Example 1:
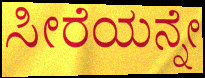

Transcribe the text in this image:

ಸೀರೆಯನ್ನೇ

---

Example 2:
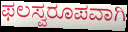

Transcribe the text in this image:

ಫಲಸ್ವರೂಪವಾಗಿ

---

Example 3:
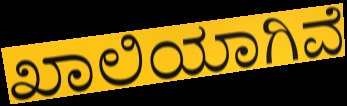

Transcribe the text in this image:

ಖಾಲಿಯಾಗಿವೆ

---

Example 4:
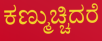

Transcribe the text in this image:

ಕಣ್ಮುಚ್ಚಿದರೆ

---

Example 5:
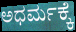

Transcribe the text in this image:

ಅಧರ್ಮಕ್ಕೆ